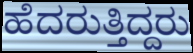
ಹೆದರುತ್ತಿದ್ದರು